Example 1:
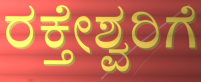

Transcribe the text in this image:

ರಕ್ತೇಶ್ವರಿಗೆ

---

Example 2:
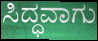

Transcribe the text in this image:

ಸಿದ್ಧವಾಗು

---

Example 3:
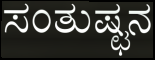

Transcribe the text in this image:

ಸಂತುಷ್ಟನ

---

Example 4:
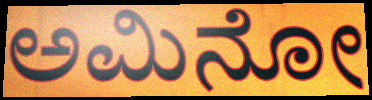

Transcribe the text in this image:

ಅಮಿನೋ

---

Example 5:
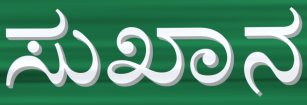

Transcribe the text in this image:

ಸುಖಾನ